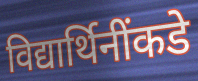
विद्यार्थिनींकडे